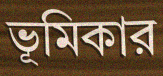
ভূমিকার